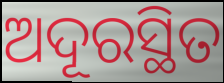
ଅଦୂରସ୍ଥିତ